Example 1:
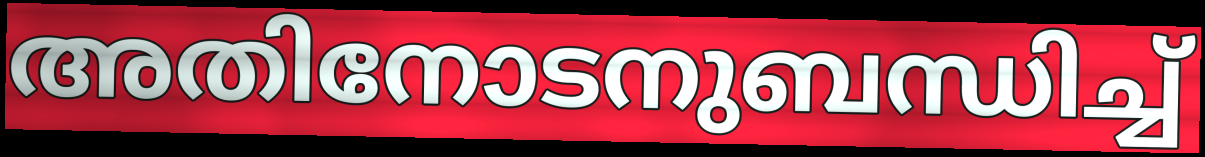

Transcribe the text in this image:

അതിനോടനുബന്ധിച്ച്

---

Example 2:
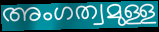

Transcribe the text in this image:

അംഗത്വമുള്ള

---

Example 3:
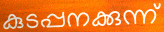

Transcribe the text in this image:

കുടപ്പനക്കുന്ന്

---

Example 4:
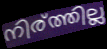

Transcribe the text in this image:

നിര്ത്തില്ല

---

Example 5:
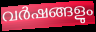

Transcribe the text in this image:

വർഷങ്ങളും